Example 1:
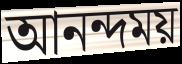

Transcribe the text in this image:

আনন্দময়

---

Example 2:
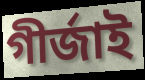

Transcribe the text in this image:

গীৰ্জাই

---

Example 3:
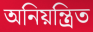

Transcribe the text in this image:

অনিয়ন্ত্ৰিত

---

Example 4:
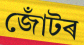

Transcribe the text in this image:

জোঁটৰ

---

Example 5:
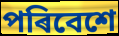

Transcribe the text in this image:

পৰিবেশে